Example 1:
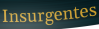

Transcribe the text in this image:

Insurgentes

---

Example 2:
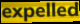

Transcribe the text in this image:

expelled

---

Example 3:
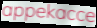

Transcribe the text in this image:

appekacce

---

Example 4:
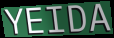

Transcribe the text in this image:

YEIDA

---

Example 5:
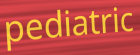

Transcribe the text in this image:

pediatric